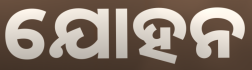
ଯୋହନ